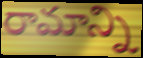
రామాన్ని